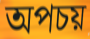
অপচয়